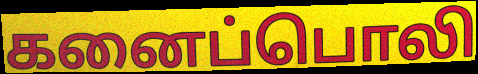
கனைப்பொலி